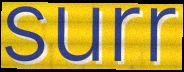
surr